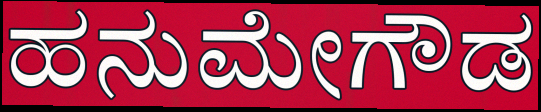
ಹನುಮೇಗೌಡ